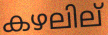
കഴലില്